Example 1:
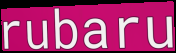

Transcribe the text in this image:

rubaru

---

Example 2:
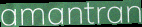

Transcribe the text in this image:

amantran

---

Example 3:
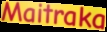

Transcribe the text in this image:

Maitraka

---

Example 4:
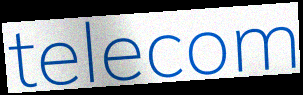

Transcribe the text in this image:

telecom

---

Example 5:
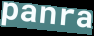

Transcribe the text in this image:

panra